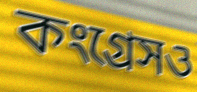
কংগ্রেসও